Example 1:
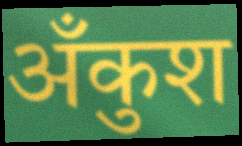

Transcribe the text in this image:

अँकुश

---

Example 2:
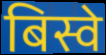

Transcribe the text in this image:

बिस्वे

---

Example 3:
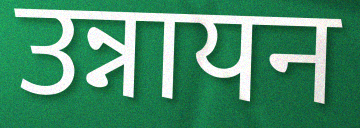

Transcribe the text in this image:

उन्नायन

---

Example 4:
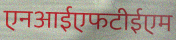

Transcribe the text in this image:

एनआईएफटीईएम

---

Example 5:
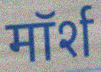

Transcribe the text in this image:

मॉर्श